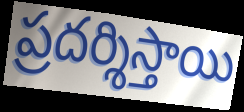
ప్రదర్శిస్తాయి